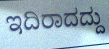
ಇದಿರಾದದ್ದು